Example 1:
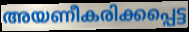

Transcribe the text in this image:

അയണീകരിക്കപ്പെട്ട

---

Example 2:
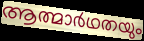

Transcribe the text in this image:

ആത്മാർഥതയും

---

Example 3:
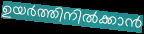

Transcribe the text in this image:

ഉയർത്തിനിൽക്കാൻ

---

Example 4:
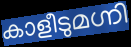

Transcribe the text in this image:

കാളീടുമഗ്നി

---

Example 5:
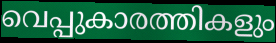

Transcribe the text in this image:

വെപ്പുകാരത്തികളും